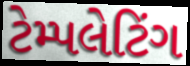
ટેમ્પલેટિંગ